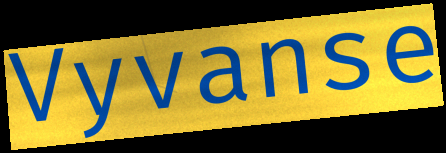
Vyvanse